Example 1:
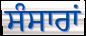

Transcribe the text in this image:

ਸੰਸਾਰਾਂ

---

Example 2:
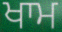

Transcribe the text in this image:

ਖਾਮ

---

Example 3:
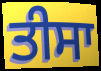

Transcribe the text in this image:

ਤੀਸਾ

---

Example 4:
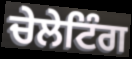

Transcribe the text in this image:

ਚੇਲੇਟਿੰਗ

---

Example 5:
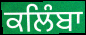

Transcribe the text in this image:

ਕਲਿੰਬਾ